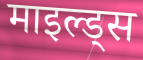
माइल्ड्स